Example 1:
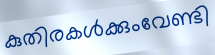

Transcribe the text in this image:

കുതിരകൾക്കുംവേണ്ടി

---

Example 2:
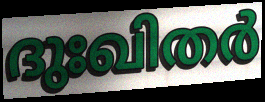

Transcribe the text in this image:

ദുഃഖിതർ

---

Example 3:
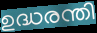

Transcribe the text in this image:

ഉദ്ധരന്തി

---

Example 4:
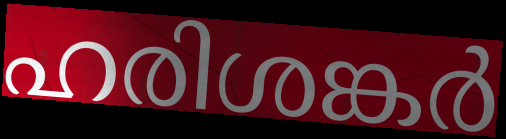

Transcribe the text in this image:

ഹരിശങ്കർ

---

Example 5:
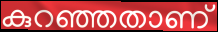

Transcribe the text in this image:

കുറഞ്ഞതാണ്